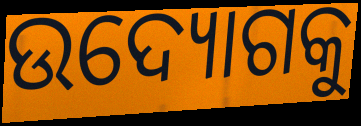
ଉଦ୍ୟୋଗକୁ